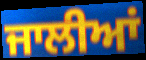
ਜਾਲੀਆਂ